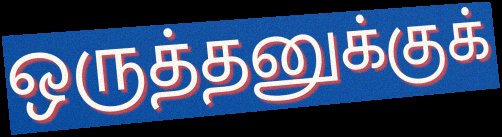
ஒருத்தனுக்குக்